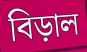
বিড়াল